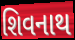
શિવનાથ